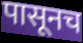
पासूनच